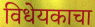
विधेयकाचा